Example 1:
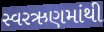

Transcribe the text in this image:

સ્વરઋણમાંથી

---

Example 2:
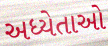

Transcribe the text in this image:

અધ્યેતાઓ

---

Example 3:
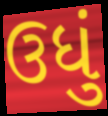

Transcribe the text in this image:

ઉધું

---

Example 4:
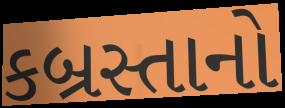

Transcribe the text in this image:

કબ્રસ્તાનો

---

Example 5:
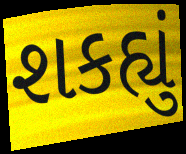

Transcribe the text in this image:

શકહ્યું